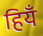
हियँ